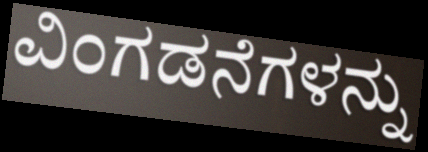
ವಿಂಗಡನೆಗಳನ್ನು